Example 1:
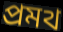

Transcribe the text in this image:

প্রমথ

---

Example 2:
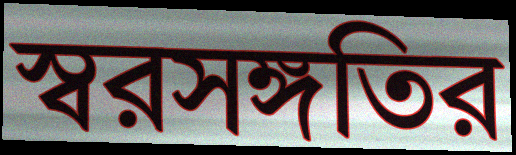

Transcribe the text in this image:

স্বরসঙ্গতির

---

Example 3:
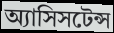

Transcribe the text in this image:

অ্যাসিসটেন্স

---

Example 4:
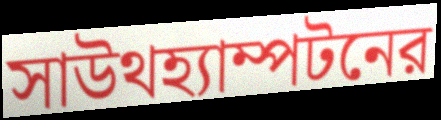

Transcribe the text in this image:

সাউথহ্যাম্পটনের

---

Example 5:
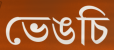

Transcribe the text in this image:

ভেঙচি